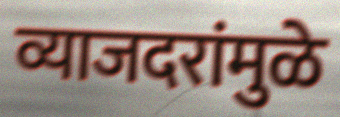
व्याजदरांमुळे